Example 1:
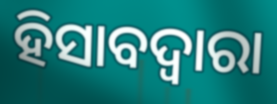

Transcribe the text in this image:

ହିସାବଦ୍ଵାରା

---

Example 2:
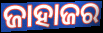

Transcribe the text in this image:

ଜାହାଜର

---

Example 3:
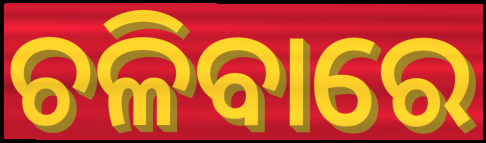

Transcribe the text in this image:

ଚଳିବାରେ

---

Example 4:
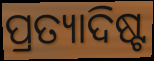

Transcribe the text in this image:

ପ୍ରତ୍ୟାଦିଷ୍ଟ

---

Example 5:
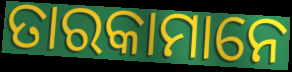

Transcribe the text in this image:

ତାରକାମାନେ